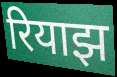
रियाझ